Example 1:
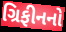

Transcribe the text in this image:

ગ્રિફીનનો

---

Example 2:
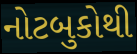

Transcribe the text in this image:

નોટબુકોથી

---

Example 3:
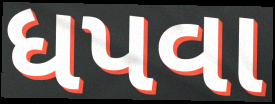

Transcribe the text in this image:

ધપવા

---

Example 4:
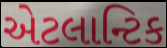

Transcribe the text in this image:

એટલાન્ટિક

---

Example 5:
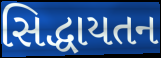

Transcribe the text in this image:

સિદ્ધાયતન